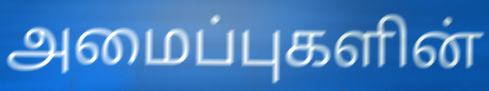
அமைப்புகளின்